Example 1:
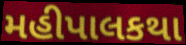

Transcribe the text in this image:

મહીપાલકથા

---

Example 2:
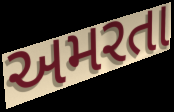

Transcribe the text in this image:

અમરતા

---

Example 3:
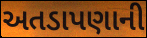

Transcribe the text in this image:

અતડાપણાની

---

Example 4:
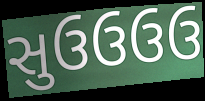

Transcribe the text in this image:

સુઉઉઉઉ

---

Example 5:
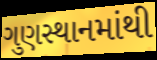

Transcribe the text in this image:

ગુણસ્થાનમાંથી